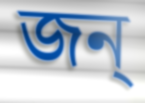
জন্